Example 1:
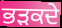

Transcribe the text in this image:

ਭੜਕਦੇ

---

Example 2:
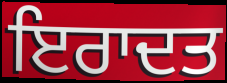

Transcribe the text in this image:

ਇਰਾਦਤ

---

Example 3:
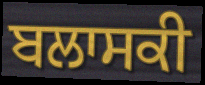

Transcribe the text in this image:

ਬਲਾਸਕੀ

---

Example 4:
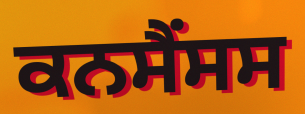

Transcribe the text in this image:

ਕਨਸੈਂਸਸ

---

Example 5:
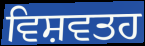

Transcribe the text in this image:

ਵਿਸ਼ਵਤਹ